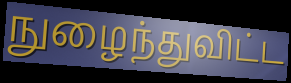
நுழைந்துவிட்ட